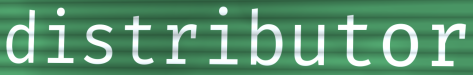
distributor